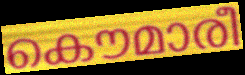
കൌമാരീ